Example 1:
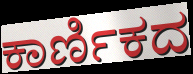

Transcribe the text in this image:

ಕಾರ್ಣಿಕದ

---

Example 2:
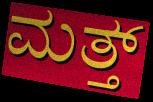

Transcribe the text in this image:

ಮತ್ತ್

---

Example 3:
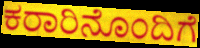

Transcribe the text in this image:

ಕರಾರಿನೊಂದಿಗೆ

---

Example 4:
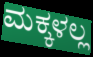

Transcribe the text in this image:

ಮಕ್ಕಳಲ್ಲ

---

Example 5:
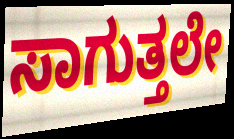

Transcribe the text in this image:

ಸಾಗುತ್ತಲೇ